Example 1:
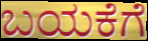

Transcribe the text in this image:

ಬಯಕೆಗೆ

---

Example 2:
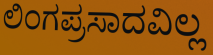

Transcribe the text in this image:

ಲಿಂಗಪ್ರಸಾದವಿಲ್ಲ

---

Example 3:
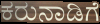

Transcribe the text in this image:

ಕರುನಾಡಿಗೆ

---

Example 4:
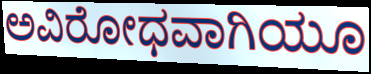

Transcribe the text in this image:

ಅವಿರೋಧವಾಗಿಯೂ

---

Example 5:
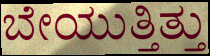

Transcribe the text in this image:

ಬೇಯುತ್ತಿತ್ತು